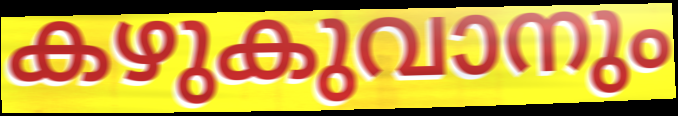
കഴുകുവാനും